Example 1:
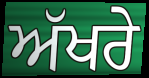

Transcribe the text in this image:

ਅੱਖਰੇ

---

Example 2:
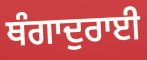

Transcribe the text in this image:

ਥੰਗਾਦੁਰਾਈ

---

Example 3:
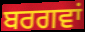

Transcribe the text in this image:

ਬਰਗਵਾਂ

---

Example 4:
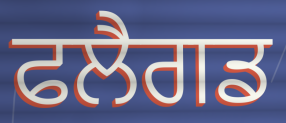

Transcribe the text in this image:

ਫਲੈਗਡ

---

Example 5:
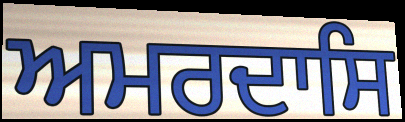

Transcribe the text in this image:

ਅਮਰਦਾਸਿ